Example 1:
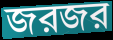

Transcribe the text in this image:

জরজর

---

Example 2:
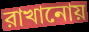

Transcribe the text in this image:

রাখানোয়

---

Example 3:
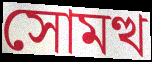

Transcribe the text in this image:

সোমত্থ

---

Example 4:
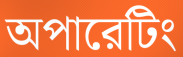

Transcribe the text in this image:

অপারেটিং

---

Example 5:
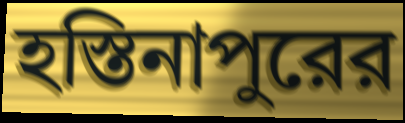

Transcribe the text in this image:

হস্তিনাপুরের